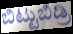
ಬಿಟ್ಟುಬಿಡ್ರಿ